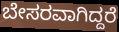
ಬೇಸರವಾಗಿದ್ದರೆ